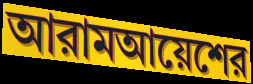
আরামআয়েশের